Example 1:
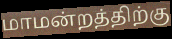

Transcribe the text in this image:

மாமன்றத்திற்கு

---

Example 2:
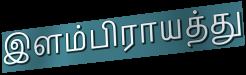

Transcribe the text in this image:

இளம்பிராயத்து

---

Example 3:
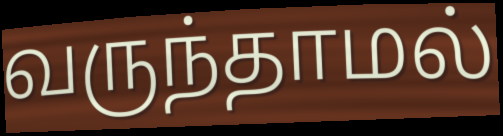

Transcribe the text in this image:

வருந்தாமல்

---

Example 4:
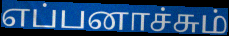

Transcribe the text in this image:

எப்பனாச்சும்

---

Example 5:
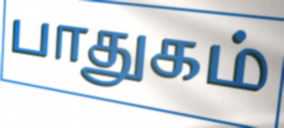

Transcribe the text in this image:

பாதுகம்